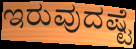
ಇರುವುದಷ್ಟೆ